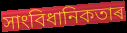
সাংবিধানিকতাৰ